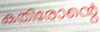
കതിരോന്റെ